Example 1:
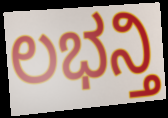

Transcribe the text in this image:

ಲಭನ್ತಿ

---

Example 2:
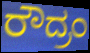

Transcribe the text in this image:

ರೌದ್ರಂ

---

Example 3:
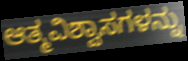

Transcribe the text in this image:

ಆತ್ಮವಿಶ್ವಾಸಗಳನ್ನು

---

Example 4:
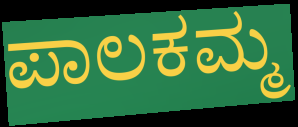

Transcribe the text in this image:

ಪಾಲಕಮ್ಮ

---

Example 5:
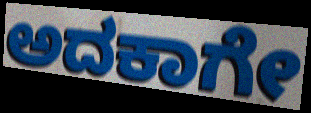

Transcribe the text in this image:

ಅದಕಾಗೇ